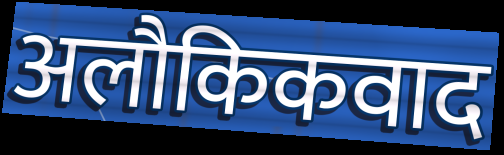
अलौकिकवाद